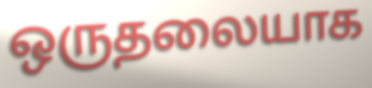
ஒருதலையாக